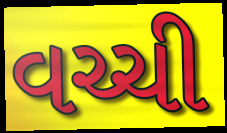
વચ્ચી